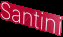
Santini